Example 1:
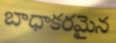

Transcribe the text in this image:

బాధాకరమైన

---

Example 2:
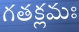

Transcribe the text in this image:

గతక్లమః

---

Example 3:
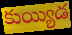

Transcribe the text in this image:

కుయ్యిడ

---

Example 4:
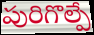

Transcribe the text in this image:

పురిగొల్పే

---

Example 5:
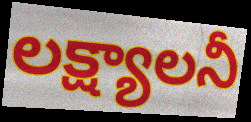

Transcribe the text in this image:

లక్ష్యాలనీ